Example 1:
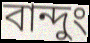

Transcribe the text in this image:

বান্দুং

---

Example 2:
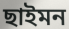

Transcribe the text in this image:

ছাইমন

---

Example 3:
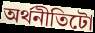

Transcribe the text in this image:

অৰ্থনীতিটো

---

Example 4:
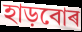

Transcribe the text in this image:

হাড়বোৰ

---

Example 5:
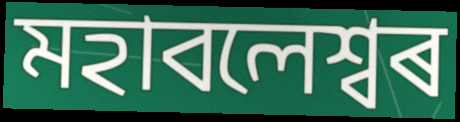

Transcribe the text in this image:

মহাবলেশ্বৰ